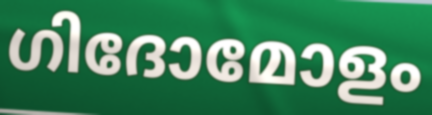
ഗിദോമോളം